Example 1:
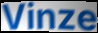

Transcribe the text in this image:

Vinze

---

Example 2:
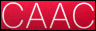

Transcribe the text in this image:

CAAC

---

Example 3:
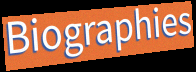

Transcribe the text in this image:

Biographies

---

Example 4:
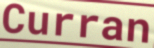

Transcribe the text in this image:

Curran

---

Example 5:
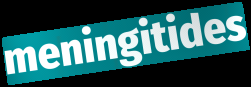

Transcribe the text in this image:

meningitides